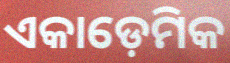
ଏକାଡ଼େମିକ